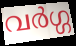
വർഗ്ഗ